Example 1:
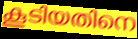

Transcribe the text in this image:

കൂടിയതിനെ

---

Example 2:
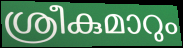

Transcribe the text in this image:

ശ്രീകുമാറും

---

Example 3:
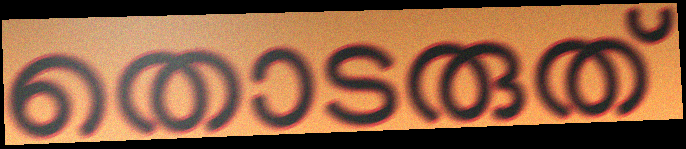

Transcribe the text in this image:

തൊടരുത്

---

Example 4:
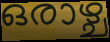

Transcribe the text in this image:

ഒരാഴ്ച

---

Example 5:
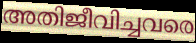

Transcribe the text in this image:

അതിജീവിച്ചവരെ